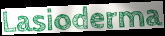
Lasioderma